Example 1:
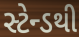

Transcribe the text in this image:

સ્ટેન્ડથી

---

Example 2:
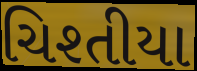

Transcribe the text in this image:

ચિશ્તીયા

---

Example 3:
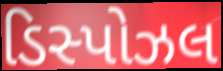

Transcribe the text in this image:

ડિસ્પોઝલ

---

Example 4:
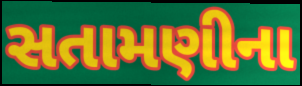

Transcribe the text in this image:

સતામણીના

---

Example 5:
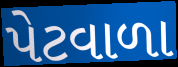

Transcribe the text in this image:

પેટવાળા